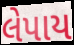
લેપાય